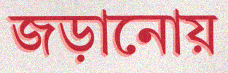
জড়ানোয়